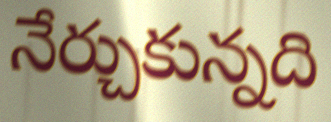
నేర్చుకున్నది